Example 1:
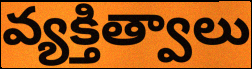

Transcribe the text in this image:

వ్యక్తిత్వాలు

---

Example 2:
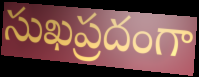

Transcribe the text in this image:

సుఖప్రదంగా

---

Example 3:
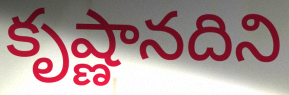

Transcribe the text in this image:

కృష్ణానదిని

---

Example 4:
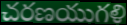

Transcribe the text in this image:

చరణయుగళి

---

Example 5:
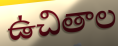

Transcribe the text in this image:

ఉచితాల